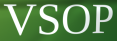
VSOP